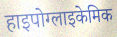
हाइपोग्लाइकेमिक